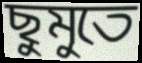
ছুমুতে